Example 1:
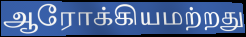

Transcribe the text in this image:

ஆரோக்கியமற்றது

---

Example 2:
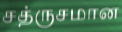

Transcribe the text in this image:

சத்ருசமான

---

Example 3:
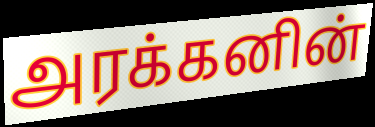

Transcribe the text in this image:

அரக்கனின்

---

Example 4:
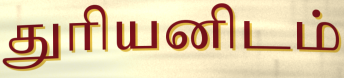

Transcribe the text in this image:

துரியனிடம்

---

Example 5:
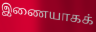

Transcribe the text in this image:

இணையாகக்